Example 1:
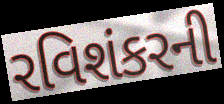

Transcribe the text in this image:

રવિશંકરની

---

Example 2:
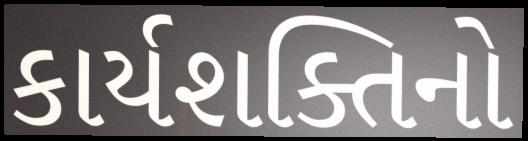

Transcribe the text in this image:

કાર્યશક્તિનો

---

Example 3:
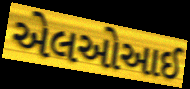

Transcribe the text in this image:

એલઓઆઈ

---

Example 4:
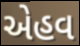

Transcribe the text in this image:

એહવ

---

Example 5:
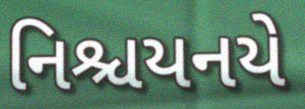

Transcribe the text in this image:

નિશ્ચયનયે